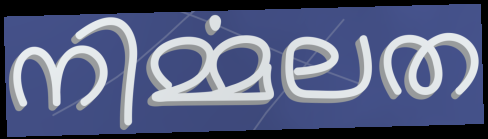
നിൎമ്മലത